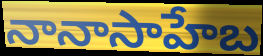
నానాసాహేబ